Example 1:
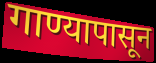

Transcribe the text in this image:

गाण्यापासून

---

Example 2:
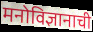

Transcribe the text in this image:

मनोविज्ञानाची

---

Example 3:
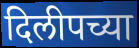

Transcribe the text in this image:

दिलीपच्या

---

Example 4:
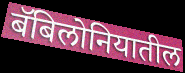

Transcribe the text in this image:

बॅबिलोनियातील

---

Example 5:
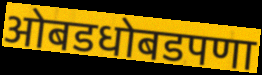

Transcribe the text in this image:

ओबडधोबडपणा